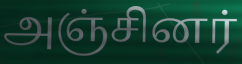
அஞ்சினர்